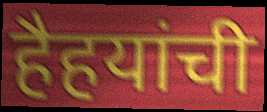
हैहयांची